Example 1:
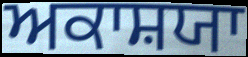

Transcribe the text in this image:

ਅਕਾਸ਼ਯਾ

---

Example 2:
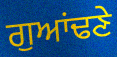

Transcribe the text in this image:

ਗੁਆਂਢਣੇ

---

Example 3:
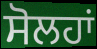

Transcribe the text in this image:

ਸੋਲਹਾਂ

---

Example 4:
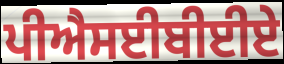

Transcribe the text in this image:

ਪੀਐਸਈਬੀਈਏ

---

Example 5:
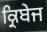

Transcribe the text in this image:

ਕ੍ਰਿਬੇਜ